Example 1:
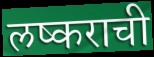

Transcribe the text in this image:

लष्कराची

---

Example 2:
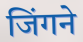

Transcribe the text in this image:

जिंगने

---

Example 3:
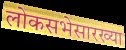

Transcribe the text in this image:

लोकसभेसारख्या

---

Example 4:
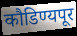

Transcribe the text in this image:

कौडिण्यपूर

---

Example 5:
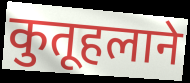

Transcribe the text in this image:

कुतूहलाने